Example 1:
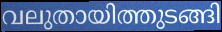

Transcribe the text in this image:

വലുതായിത്തുടങ്ങി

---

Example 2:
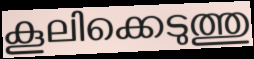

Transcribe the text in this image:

കൂലിക്കെടുത്തു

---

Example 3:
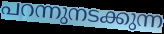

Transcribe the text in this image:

പറന്നുനടക്കുന്ന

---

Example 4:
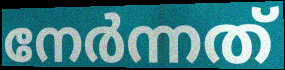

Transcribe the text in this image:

നേർന്നത്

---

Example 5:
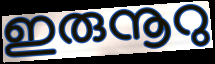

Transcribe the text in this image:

ഇരുനൂറു